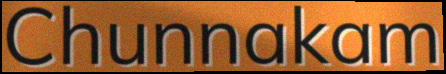
Chunnakam